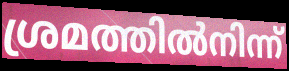
ശ്രമത്തിൽനിന്ന്